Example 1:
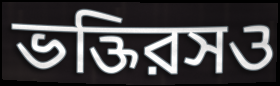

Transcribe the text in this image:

ভক্তিরসও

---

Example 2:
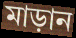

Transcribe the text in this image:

মাড়ান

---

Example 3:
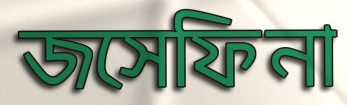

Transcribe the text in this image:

জসেফিনা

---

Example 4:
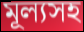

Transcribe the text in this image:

মূল্যসহ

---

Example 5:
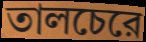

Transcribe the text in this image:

তালচেরে